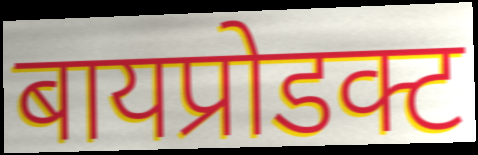
बायप्रोडक्ट